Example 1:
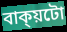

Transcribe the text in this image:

বাক্য়টো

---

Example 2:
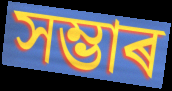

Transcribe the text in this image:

সম্ভাৰ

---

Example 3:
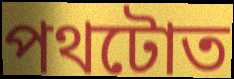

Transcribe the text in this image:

পথটোত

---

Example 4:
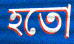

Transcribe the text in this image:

হতো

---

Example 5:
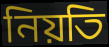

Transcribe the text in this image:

নিয়তি